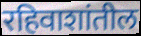
रहिवाशांतील